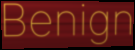
Benign